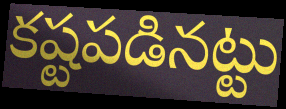
కష్టపడినట్టు